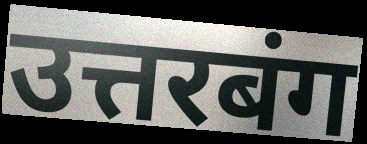
उत्तरबंग